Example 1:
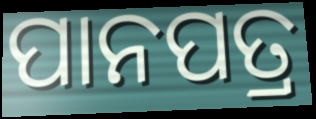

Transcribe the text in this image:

ପାନପତ୍ର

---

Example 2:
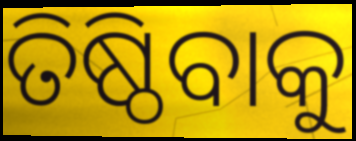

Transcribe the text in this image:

ତିଷ୍ଠିବାକୁ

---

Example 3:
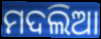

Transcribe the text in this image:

ମଦଲିଆ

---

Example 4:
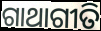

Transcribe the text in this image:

ଗାଥାଗୀତି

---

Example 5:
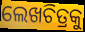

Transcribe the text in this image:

ଲେଖଚିତ୍ରକୁ